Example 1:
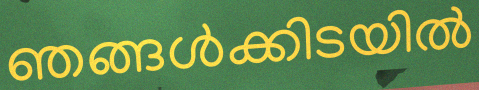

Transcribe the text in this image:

ഞങ്ങൾക്കിടയിൽ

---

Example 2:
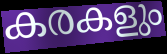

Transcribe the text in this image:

കരകളും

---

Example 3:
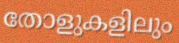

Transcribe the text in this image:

തോളുകളിലും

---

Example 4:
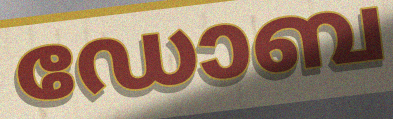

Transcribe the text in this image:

ഡോബ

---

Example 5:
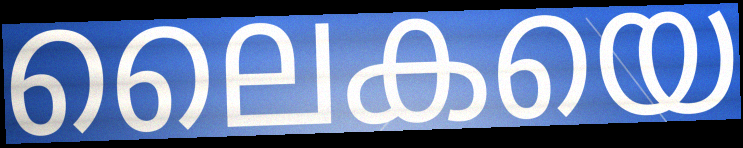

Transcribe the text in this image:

ലൈകയെ